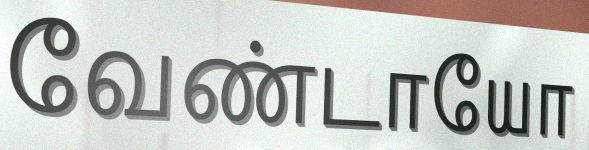
வேண்டாயோ